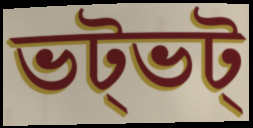
ভট্ভট্